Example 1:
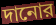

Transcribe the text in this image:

দানোর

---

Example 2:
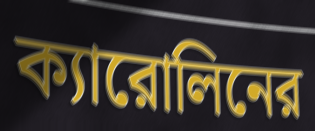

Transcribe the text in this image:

ক্যারোলিনের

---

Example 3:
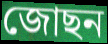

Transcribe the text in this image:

জোছন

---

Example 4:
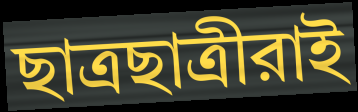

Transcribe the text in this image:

ছাত্রছাত্রীরাই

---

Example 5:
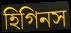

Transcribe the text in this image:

হিগিনস